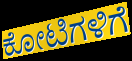
ಕೋಟಿಗಳಿಗೆ